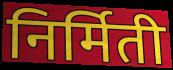
निर्मिती